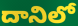
దానిలో